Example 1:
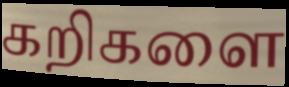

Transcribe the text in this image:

கறிகளை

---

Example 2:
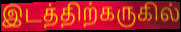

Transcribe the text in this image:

இடத்திற்கருகில்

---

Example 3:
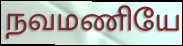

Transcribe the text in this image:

நவமணியே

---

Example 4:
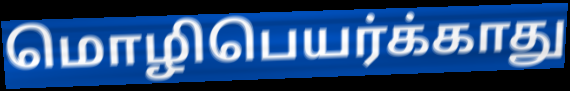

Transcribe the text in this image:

மொழிபெயர்க்காது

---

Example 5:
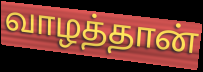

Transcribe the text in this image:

வாழத்தான்